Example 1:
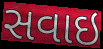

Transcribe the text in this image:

સવાઇ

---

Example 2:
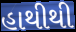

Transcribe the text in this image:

હાથીથી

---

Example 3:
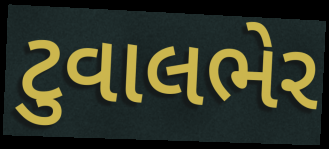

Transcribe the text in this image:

ટુવાલભેર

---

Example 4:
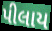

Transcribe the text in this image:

પીલાય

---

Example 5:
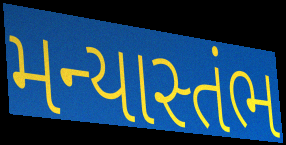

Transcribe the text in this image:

મન્યાસ્તંભ